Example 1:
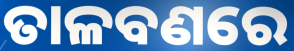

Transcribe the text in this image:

ତାଳବଣରେ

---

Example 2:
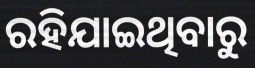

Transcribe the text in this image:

ରହିଯାଇଥିବାରୁ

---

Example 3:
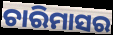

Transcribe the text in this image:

ଚାରିମାସର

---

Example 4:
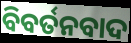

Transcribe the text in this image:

ବିବର୍ତନବାଦ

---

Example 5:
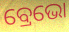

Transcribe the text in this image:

ବ୍ରେଭୋ